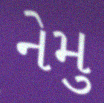
નેમુ